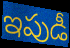
ఇపుడీ